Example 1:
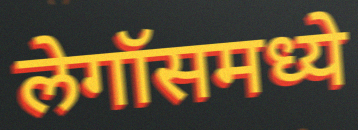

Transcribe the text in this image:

लेगॉसमध्ये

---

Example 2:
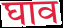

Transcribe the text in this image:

घाव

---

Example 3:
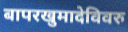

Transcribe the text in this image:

बापरखुमादेविवरु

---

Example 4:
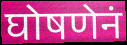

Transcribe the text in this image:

घोषणेनं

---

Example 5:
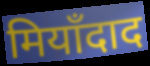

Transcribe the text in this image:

मियाँदाद